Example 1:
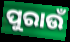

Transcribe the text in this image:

ପୁରାଉଁ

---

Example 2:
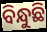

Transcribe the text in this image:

ବିନ୍ଧୁଛି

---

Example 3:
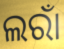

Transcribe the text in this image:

ଲରାଁ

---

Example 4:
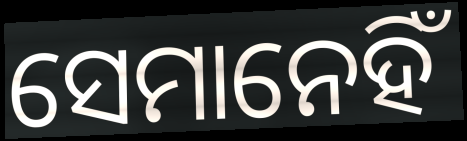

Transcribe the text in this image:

ସେମାନେହିଁ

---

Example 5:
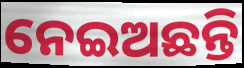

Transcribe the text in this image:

ନେଇଅଛନ୍ତି